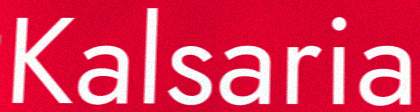
Kalsaria